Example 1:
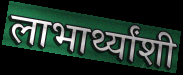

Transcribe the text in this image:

लाभार्थ्यांशी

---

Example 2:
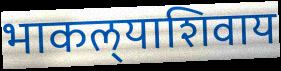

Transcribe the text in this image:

भाकल्याशिवाय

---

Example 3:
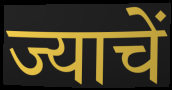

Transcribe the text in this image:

ज्याचें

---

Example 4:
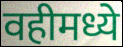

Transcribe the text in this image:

वहीमध्ये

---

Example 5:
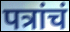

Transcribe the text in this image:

पत्रांचं